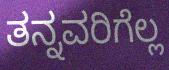
ತನ್ನವರಿಗೆಲ್ಲ